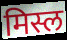
मिस्ल